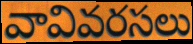
వావివరసలు